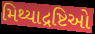
મિથ્યાદ્રષ્ટિઓ